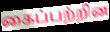
கைப்பற்றின